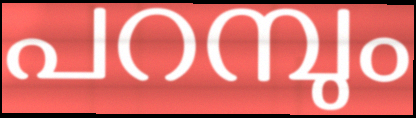
പറമ്പും